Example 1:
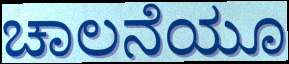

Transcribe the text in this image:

ಚಾಲನೆಯೂ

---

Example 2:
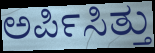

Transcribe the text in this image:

ಅರ್ಪಿಸಿತ್ತು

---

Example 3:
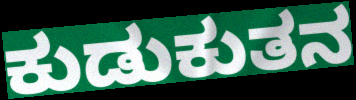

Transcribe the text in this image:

ಕುಡುಕುತನ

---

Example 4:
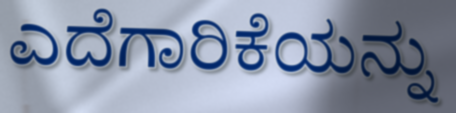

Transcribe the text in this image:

ಎದೆಗಾರಿಕೆಯನ್ನು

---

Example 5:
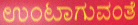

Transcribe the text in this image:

ಉಂಟಾಗುವಂತೆ